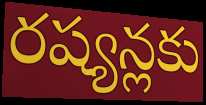
రష్యన్లకు